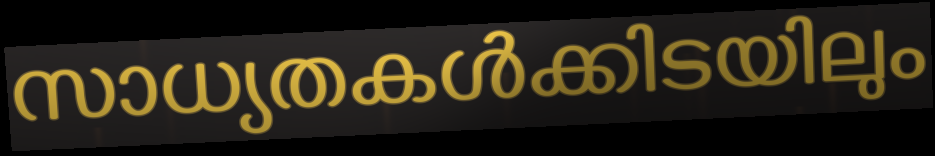
സാധ്യതകൾക്കിടയിലും